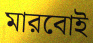
মারবোই